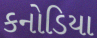
કનોડિયા